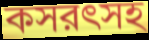
কসরৎসহ